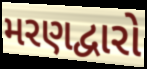
મરણદ્વારો